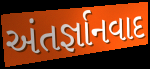
અંતર્જ્ઞાનવાદ